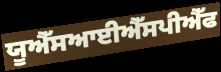
ਯੂਐੱਸਆਈਐੱਸਪੀਐੱਫ